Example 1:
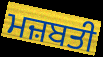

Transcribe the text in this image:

ਮਜ਼ਬਤੀ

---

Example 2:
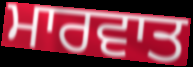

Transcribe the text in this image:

ਮਾਰਵਾਤ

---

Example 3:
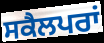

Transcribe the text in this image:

ਸਕੈਲਪਰਾਂ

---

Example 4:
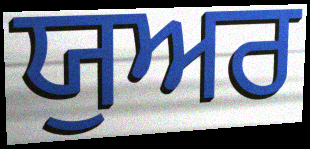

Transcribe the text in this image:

ਯੁਅਰ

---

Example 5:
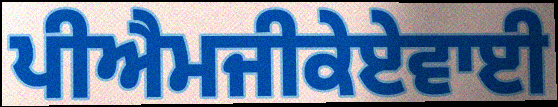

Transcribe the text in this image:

ਪੀਐਮਜੀਕੇਏਵਾਈ